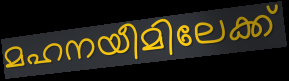
മഹനയീമിലേക്ക്